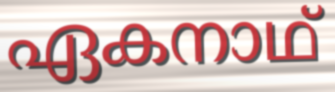
ഏകനാഥ്